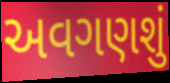
અવગણશું